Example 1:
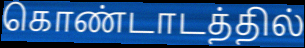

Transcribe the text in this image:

கொண்டாடத்தில்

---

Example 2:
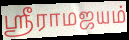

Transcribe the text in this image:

ஸ்ரீராமஜயம்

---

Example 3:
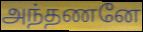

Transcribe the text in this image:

அந்தணனே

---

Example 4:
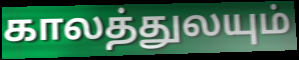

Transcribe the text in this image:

காலத்துலயும்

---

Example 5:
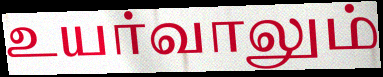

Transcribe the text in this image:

உயர்வாலும்